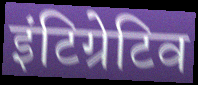
इंटिग्रेटिव